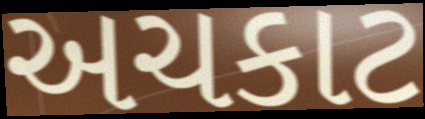
અચકાટ